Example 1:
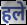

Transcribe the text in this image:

हले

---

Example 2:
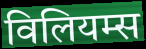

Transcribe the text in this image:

विलियम्‍स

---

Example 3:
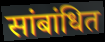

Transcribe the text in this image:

सांबांधित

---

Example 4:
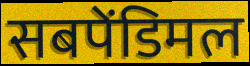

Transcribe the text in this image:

सबपेंडिमल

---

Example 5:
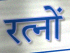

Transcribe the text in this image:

रत्‍नों